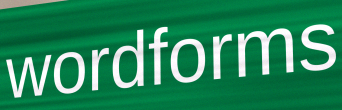
wordforms